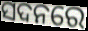
ସଦନରେ